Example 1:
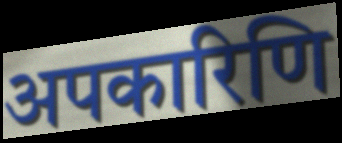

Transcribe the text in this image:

अपकारिणि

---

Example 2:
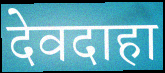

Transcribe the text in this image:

देवदाहा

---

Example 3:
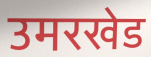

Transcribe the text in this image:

उमरखेड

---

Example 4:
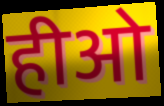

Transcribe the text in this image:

हीओ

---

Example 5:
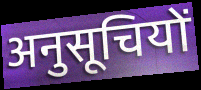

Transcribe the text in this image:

अनुसूचियों